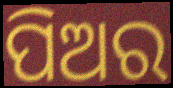
ପିଅର